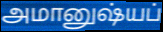
அமானுஷ்யப்